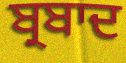
ਬ੍ਰਬਾਦ